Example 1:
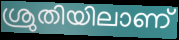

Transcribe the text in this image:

ശ്രുതിയിലാണ്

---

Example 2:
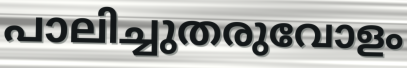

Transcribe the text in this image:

പാലിച്ചുതരുവോളം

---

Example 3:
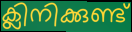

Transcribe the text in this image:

ക്ലിനിക്കുണ്ട്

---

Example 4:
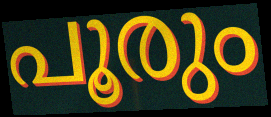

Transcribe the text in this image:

പൂരും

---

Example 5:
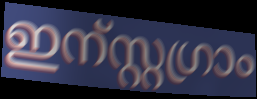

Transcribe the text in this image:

ഇന്സ്റ്റഗ്രാം